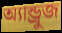
অ্যান্ড্রুজ